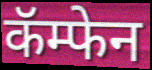
कॅम्फेन